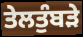
ਤੇਲਤੁੰਬੜੇ